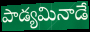
పాడ్యమినాడే